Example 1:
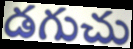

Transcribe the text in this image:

డగుచు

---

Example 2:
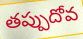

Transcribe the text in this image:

తప్పుదోవ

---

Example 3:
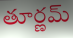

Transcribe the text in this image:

తూర్ణమ్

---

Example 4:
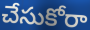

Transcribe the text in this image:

చేసుకోరా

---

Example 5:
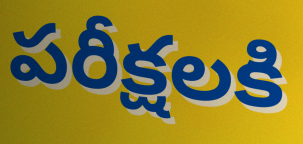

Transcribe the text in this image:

పరీక్షలకి